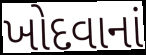
ખોદવાનાં